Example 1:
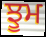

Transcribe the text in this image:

ਝੂਮ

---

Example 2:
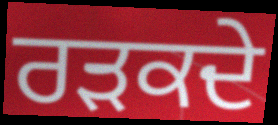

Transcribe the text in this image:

ਰੜਕਦੇ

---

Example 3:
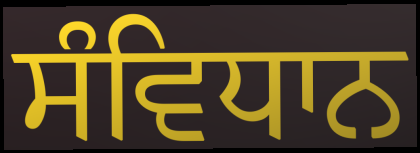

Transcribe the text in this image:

ਸੰਵਿਧਾਨ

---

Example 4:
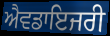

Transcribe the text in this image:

ਐਵਡਾਇਜਰੀ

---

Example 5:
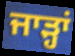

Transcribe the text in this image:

ਜਾੜ੍ਹਾਂ